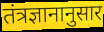
तंत्रज्ञानानुसार